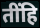
तींहि